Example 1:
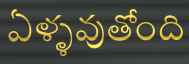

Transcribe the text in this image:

ఏళ్ళవుతోంది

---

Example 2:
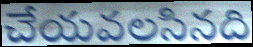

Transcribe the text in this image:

చేయవలసినది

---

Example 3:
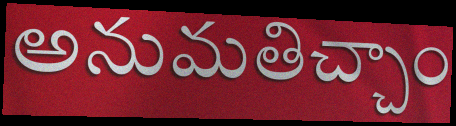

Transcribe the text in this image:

అనుమతిచ్చాం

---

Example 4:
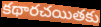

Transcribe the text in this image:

కథారచయితకు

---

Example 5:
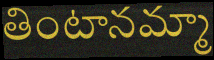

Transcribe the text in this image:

తింటానమ్మా